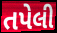
તપેલી